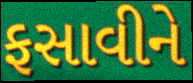
ફસાવીને